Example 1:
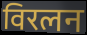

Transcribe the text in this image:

विरलन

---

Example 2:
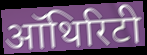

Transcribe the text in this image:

ऑथिरिटी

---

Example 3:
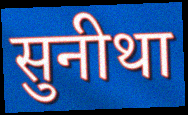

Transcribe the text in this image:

सुनीथा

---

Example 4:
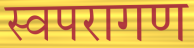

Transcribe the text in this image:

स्वपरागण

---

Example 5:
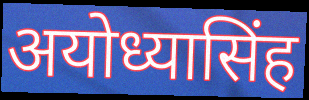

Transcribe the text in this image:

अयोध्यासिंह